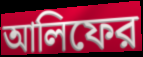
আলিফের